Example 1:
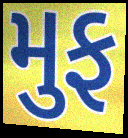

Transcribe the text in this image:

મુફ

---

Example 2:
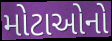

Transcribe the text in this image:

મોટાઓનો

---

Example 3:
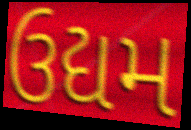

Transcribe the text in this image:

ઉદ્યમ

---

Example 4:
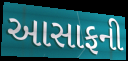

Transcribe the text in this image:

આસાફની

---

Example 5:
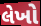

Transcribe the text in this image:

લેખો